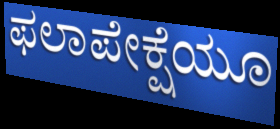
ಫಲಾಪೇಕ್ಷೆಯೂ